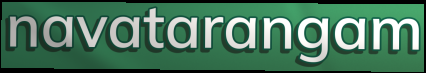
navatarangam